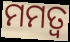
ମମତ୍ୱ